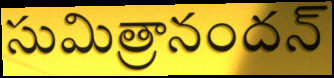
సుమిత్రానందన్